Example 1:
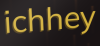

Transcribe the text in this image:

ichhey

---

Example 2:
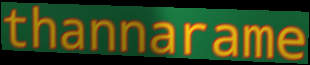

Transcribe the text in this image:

thannarame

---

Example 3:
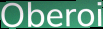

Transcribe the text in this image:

Oberoi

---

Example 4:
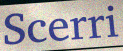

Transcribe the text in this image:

Scerri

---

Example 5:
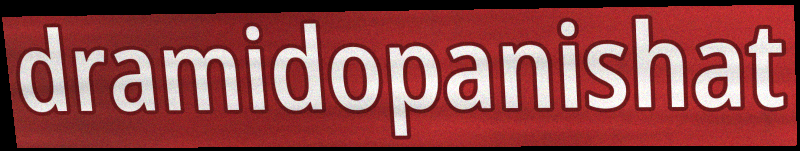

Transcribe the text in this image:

dramidopanishat